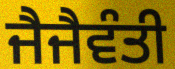
ਜੈਜੈਵੰਤੀ